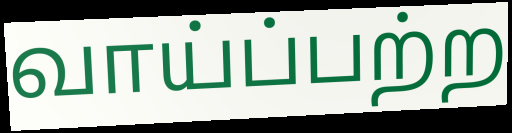
வாய்ப்பற்ற